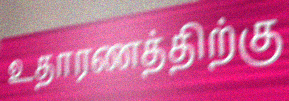
உதாரணத்திற்கு